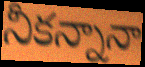
నీకన్నానా